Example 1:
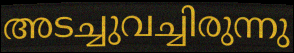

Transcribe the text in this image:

അടച്ചുവച്ചിരുന്നു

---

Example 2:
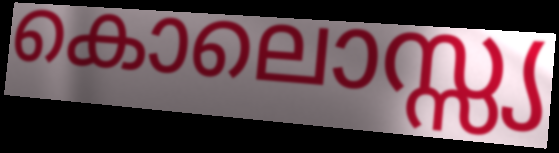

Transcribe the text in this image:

കൊലൊസ്സ്യ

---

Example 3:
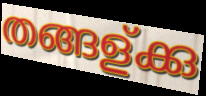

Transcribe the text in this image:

തങ്ങള്ക്കു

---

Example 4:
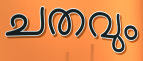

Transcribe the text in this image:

ചതവും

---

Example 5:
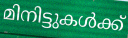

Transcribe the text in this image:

മിനിട്ടുകൾക്ക്